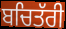
ਬਚਿਤੱਰੀ